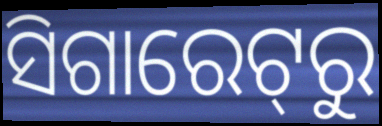
ସିଗାରେଟ୍‌ରୁ